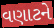
વણાટને